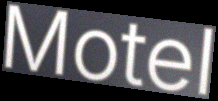
Motel